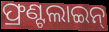
ଫ୍ରଣ୍ଟଲାଇନ୍